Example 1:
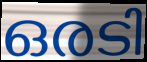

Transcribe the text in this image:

ഒരടി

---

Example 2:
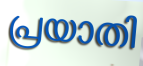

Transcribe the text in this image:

പ്രയാതി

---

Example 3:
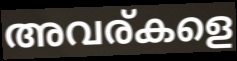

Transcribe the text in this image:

അവര്കളെ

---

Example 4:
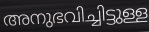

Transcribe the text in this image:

അനുഭവിച്ചിട്ടുള്ള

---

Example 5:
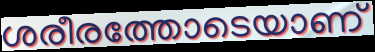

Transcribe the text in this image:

ശരീരത്തോടെയാണ്